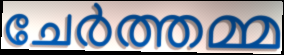
ചേർത്തമ്മ